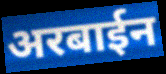
अरबाईन